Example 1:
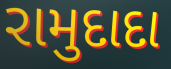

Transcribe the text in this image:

રામુદાદા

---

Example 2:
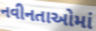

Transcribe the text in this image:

નવીનતાઓમાં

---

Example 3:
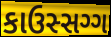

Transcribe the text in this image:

કાઉસ્સગ્ગ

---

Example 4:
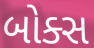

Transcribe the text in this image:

બોક્સ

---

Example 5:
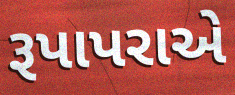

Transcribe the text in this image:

રૂપાપરાએ